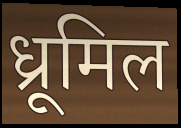
ध्रूमिल